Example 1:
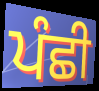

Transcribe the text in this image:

ਪੰਛੀ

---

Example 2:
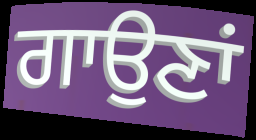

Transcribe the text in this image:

ਗਾਉਣਾਂ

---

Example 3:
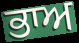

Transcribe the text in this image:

ਭਾਅ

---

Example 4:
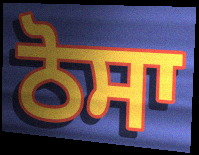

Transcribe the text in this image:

ਠੋਸਾ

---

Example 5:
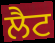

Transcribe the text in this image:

ਲੈਟ